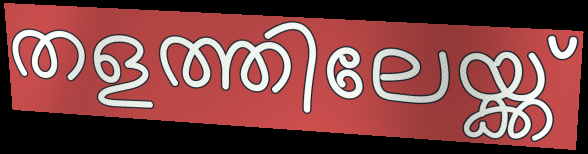
തളത്തിലേയ്ക്ക്